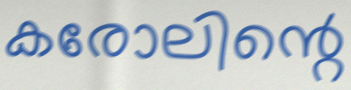
കരോലിന്റെ